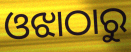
ଓଝାଠାରୁ